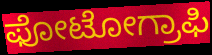
ಫೋಟೋಗ್ರಾಫಿ